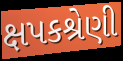
ક્ષપકશ્રેણી